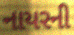
નાયરની